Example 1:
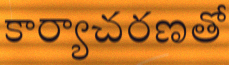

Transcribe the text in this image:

కార్యాచరణతో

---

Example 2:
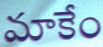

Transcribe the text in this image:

మాకేం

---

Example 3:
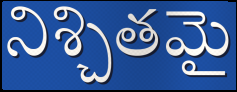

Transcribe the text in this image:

నిశ్చితమై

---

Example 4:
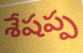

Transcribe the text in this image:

శేషప్ప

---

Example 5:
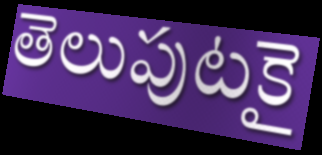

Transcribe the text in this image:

తెలుపుటకై